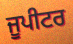
ਜੂਪੀਟਰ